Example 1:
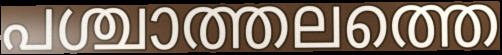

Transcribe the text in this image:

പശ്ചാത്തലത്തെ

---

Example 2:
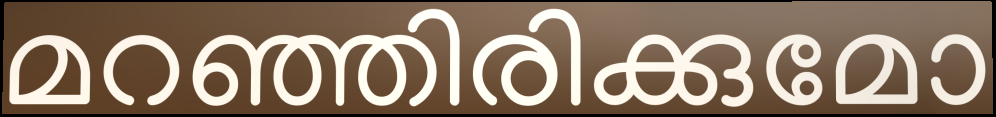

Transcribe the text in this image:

മറഞ്ഞിരിക്കുമോ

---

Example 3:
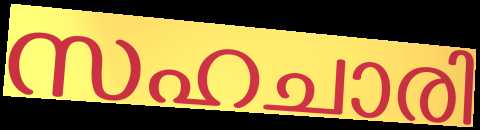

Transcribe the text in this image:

സഹചാരി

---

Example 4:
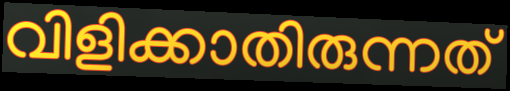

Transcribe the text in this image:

വിളിക്കാതിരുന്നത്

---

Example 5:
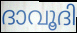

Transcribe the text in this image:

ദാവൂദി